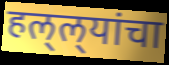
हल्ल्यांचा